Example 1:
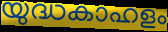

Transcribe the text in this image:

യുദ്ധകാഹളം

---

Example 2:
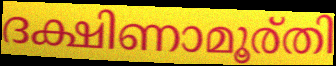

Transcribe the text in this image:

ദക്ഷിണാമൂര്തി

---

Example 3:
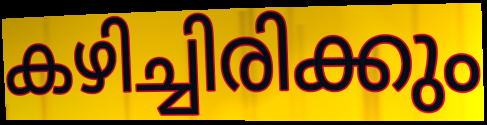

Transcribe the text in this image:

കഴിച്ചിരിക്കും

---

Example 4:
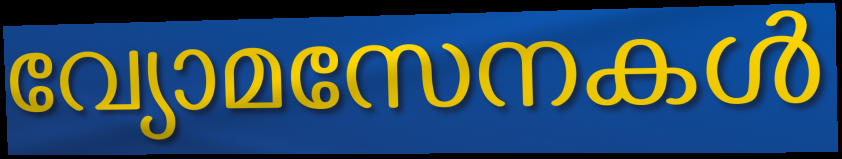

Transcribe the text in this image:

വ്യോമസേനകൾ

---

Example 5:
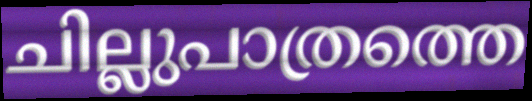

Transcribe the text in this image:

ചില്ലുപാത്രത്തെ